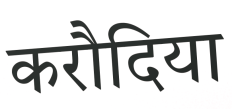
करौदिया